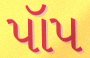
પૉપ